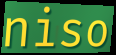
niso